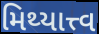
મિથ્યાત્ત્વ